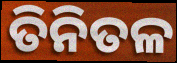
ତିନିତଳ